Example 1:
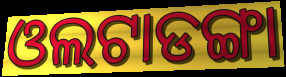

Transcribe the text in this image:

ଓଲଟାଡଙ୍ଗା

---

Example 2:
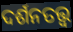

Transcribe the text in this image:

ଦର୍ଶନତତ୍ତ୍ଵ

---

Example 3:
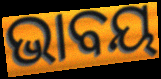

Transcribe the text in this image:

ଭାବୟ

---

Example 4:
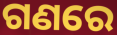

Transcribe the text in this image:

ଗଣରେ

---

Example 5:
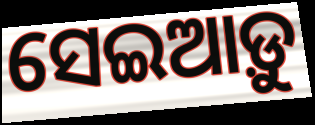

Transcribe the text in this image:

ସେଇଆଡ଼ୁ